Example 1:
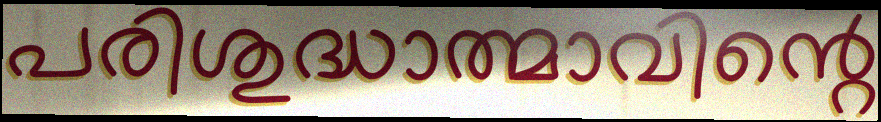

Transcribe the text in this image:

പരിശുദ്ധാത്മാവിന്റെ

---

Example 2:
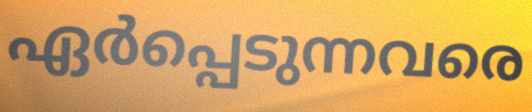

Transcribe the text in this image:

ഏർപ്പെടുന്നവരെ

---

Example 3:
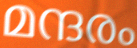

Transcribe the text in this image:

മന്ദരം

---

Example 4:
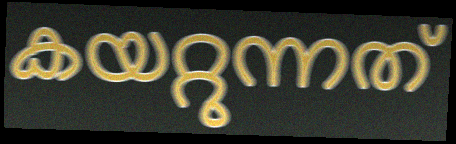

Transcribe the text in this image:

കയറ്റുന്നത്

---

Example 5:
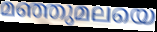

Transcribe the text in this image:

മഞ്ഞുമലയെ